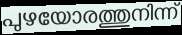
പുഴയോരത്തുനിന്ന്